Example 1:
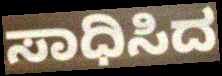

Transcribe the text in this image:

ಸಾಧಿಸಿದ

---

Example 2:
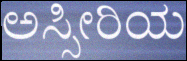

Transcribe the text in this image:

ಅಸ್ಸೀರಿಯ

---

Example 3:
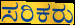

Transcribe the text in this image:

ಸರಿಕರು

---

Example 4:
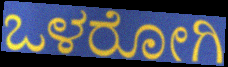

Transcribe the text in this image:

ಒಳರೋಗಿ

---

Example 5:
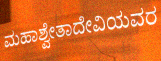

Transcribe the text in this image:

ಮಹಾಶ್ವೇತಾದೇವಿಯವರ